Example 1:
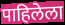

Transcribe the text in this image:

पाहिलेला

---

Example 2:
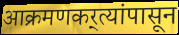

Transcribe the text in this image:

आक्रमणकर्त्यांपासून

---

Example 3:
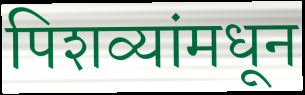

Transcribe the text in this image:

पिशव्यांमधून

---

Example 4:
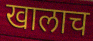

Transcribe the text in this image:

खालाच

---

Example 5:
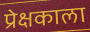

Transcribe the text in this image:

प्रेक्षकाला